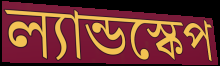
ল্যান্ডস্কেপ